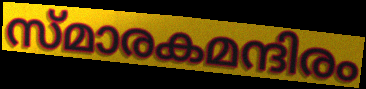
സ്മാരകമന്ദിരം